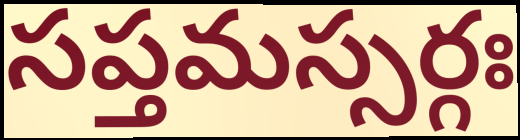
సప్తమస్సర్గః